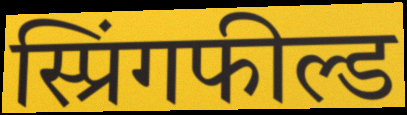
स्प्रिंगफील्ड